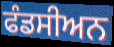
ਫੰਡਸੀਅਨ